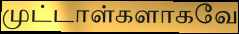
முட்டாள்களாகவே